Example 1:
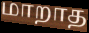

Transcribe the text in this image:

மாறாத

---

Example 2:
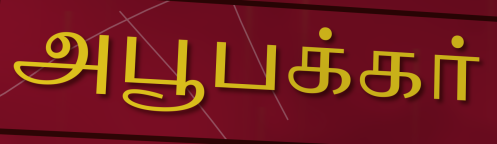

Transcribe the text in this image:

அபூபக்கர்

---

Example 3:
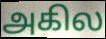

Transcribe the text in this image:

அகில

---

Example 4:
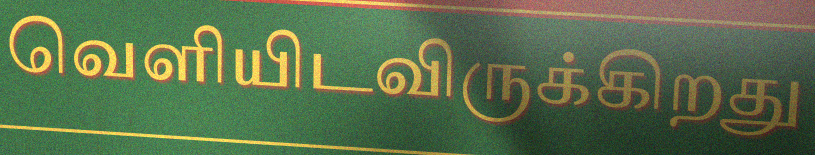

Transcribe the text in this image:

வெளியிடவிருக்கிறது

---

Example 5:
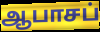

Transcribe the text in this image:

ஆபாசப்